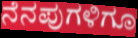
ನೆನಪುಗಳಿಗೂ